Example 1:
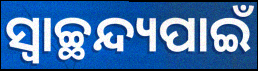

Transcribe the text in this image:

ସ୍ୱାଚ୍ଛନ୍ଦ୍ୟପାଇଁ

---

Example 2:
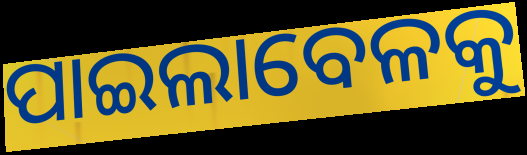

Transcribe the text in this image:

ପାଇଲାବେଳକୁ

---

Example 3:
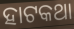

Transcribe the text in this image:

ହାଟକଥା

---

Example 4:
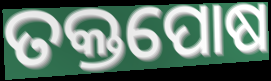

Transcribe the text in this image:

ତକ୍ତପୋଷ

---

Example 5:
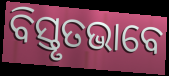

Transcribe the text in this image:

ବିସ୍ତୃତଭାବେ